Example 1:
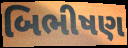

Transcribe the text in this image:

બિભીષણ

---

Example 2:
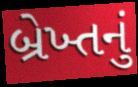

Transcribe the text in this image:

બ્રેખ્તનું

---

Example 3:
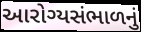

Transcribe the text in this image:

આરોગ્યસંભાળનું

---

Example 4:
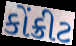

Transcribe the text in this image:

કોંક્રીટ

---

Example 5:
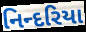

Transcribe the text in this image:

નિન્દરિયા